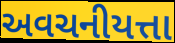
અવચનીયત્તા